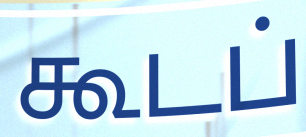
கூடப்